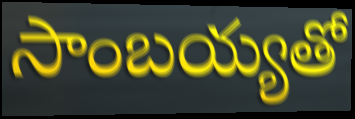
సాంబయ్యతో